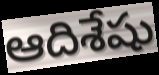
ఆదిశేషు